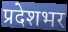
प्रदेशभर